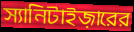
স্যানিটাইজ়ারের